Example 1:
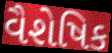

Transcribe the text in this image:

વૈશેષિક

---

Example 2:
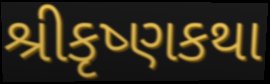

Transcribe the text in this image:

શ્રીકૃષ્ણકથા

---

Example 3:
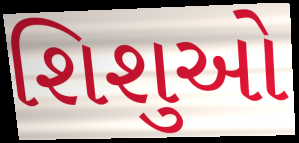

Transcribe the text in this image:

શિશુઓ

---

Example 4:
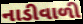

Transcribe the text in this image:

નાડીવાળી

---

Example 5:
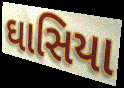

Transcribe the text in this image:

ઘાસિયા